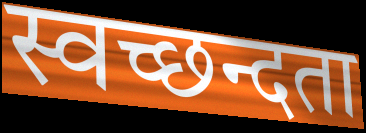
स्वच्छन्दता